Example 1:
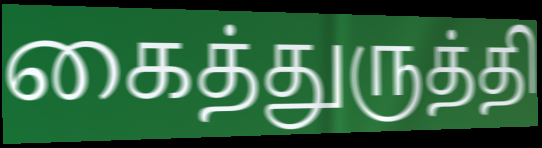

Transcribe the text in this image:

கைத்துருத்தி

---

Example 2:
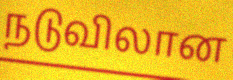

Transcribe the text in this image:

நடுவிலான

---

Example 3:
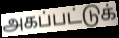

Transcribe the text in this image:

அகப்பட்டுக்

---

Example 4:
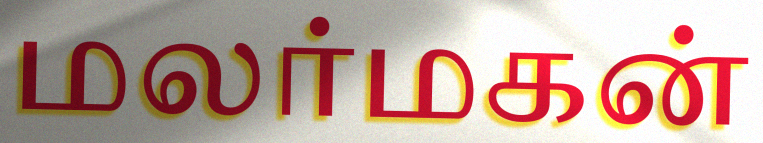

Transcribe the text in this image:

மலர்மகன்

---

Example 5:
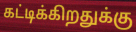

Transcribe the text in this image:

கட்டிக்கிறதுக்கு